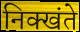
निक्खंते